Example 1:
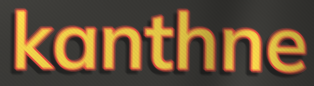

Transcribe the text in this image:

kanthne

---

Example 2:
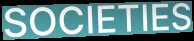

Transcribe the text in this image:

SOCIETIES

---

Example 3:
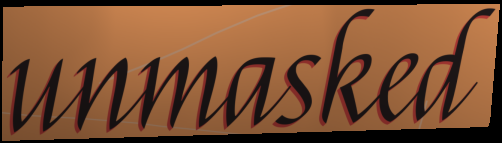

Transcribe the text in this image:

unmasked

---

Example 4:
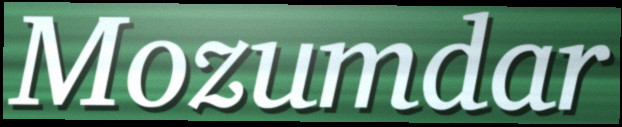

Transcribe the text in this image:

Mozumdar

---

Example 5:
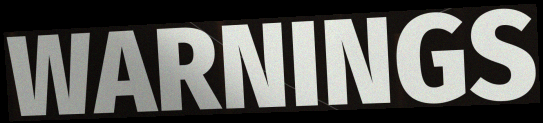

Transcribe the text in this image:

WARNINGS